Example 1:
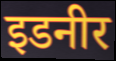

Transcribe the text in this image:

इडनीर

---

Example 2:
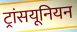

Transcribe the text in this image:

ट्रांसयूनियन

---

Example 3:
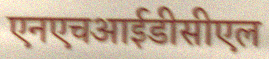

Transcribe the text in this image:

एनएचआईडीसीएल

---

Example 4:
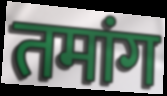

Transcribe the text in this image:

तमांग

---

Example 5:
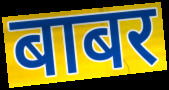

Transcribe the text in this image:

बाबर